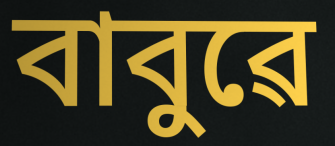
বাবুৱে